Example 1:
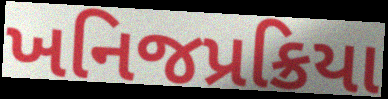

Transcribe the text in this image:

ખનિજપ્રક્રિયા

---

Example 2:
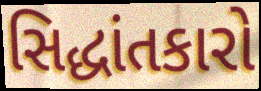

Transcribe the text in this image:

સિદ્ધાંતકારો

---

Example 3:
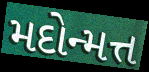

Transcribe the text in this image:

મદોન્મત્ત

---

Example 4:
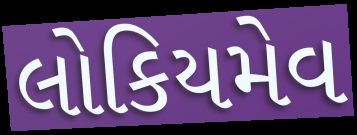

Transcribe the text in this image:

લોકિયમેવ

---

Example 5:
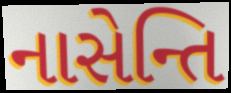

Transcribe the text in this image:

નાસેન્તિ